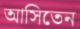
আসিতেন